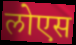
लोएस